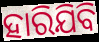
ହାରିଯିବି